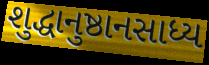
શુદ્ધાનુષ્ઠાનસાધ્ય